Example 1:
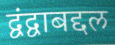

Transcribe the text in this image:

द्वंद्वाबद्दल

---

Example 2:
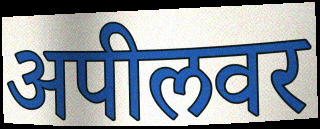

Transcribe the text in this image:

अपीलवर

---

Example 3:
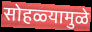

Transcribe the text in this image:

सोहळ्यामुळे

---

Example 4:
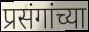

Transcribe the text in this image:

प्रसंगांच्या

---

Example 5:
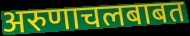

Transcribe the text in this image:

अरुणाचलबाबत